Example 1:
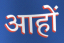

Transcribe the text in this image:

आहों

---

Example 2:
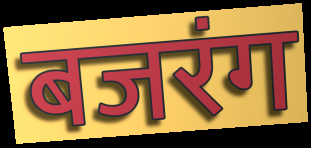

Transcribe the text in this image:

बजरंग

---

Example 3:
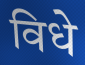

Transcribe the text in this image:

विधे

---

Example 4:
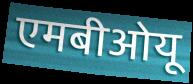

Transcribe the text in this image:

एमबीओयू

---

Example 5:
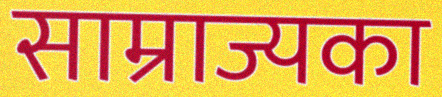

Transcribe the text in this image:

साम्राज्यका